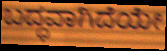
ಬದ್ಧವಾಗಿದೆಯೇ